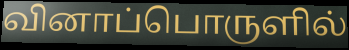
வினாப்பொருளில்